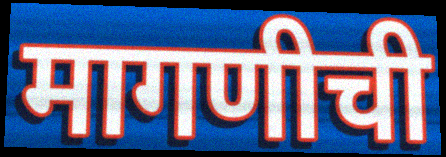
मागणीची